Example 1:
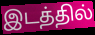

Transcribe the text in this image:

இடத்தில்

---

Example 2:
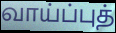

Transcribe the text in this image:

வாய்ப்புத்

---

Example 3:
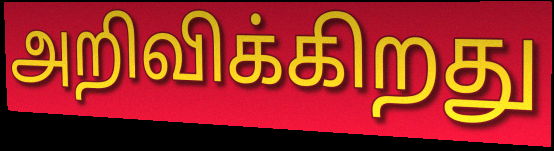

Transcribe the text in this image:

அறிவிக்கிறது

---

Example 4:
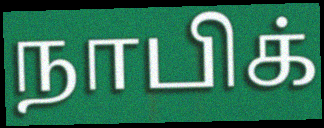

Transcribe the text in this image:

நாபிக்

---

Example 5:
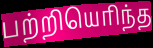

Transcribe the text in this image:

பற்றியெரிந்த